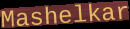
Mashelkar